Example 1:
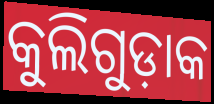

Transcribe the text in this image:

କୁଲିଗୁଡ଼ାକ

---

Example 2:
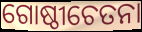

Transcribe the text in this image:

ଗୋଷ୍ଠୀଚେତନା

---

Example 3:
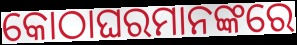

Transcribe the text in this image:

କୋଠାଘରମାନଙ୍କରେ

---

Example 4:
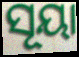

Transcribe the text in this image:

ସୂୟା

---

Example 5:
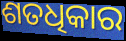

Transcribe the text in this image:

ଶତଧିକାର